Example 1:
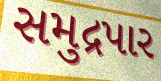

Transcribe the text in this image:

સમુદ્રપાર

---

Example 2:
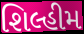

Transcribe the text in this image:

શિલ્હીમ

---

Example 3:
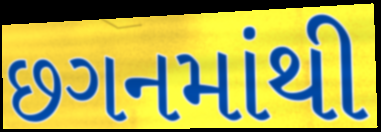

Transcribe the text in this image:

છગનમાંથી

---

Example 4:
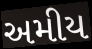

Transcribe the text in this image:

અમીય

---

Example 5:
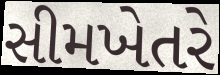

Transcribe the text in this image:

સીમખેતરે